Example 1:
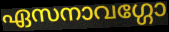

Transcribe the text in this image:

ഏസനാവഗ്ഗോ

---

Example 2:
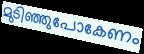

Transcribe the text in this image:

മുടിഞ്ഞുപോകേണം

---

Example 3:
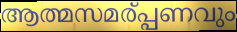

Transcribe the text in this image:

ആത്മസമര്പ്പണവും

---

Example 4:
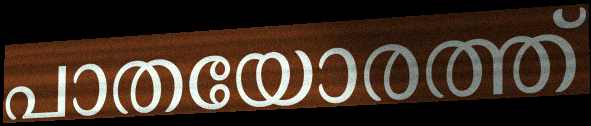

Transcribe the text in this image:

പാതയോരത്ത്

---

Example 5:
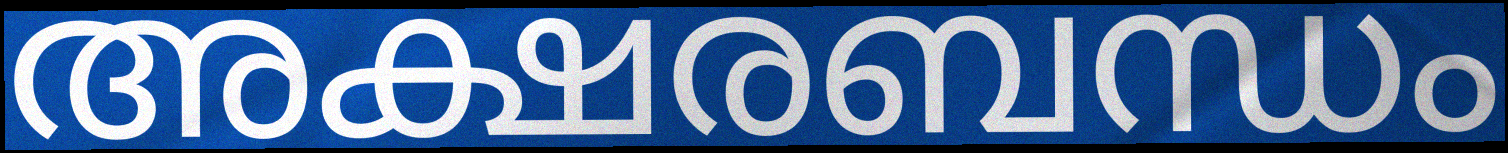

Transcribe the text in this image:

അക്ഷരബന്ധം